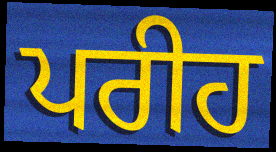
ਪਰੀਹ